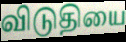
விடுதியை